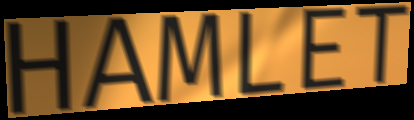
HAMLET